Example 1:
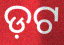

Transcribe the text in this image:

ଡ଼ଟ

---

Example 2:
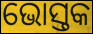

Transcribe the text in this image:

ଭୋସ୍ତକ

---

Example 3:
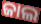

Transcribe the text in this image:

ଜାଲ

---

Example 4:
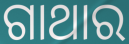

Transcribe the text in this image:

ଗାଥାର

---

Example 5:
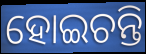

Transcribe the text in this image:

ହୋଇଚନ୍ତି